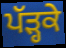
ਪੱੜ੍ਹਕੇ